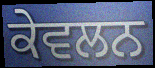
ਕੇਵਲਨ